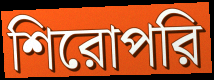
শিরোপরি